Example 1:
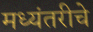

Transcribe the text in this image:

मध्यंतरीचे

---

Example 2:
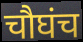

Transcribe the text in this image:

चौघंच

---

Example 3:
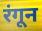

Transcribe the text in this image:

रंगून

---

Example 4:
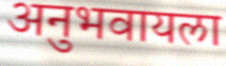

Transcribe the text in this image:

अनुभवायला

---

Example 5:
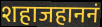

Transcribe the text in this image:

शहाजहाननं